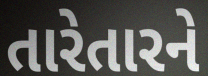
તારેતારને